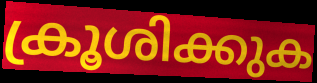
ക്രൂശിക്കുക